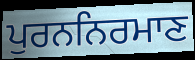
ਪੁਰਨਨਿਰਮਾਣ